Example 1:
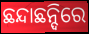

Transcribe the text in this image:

ଛନ୍ଦାଛନ୍ଦିରେ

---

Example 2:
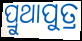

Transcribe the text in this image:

ପ୍ରୁଥାପୁତ୍ର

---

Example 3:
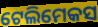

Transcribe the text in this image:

ଟେଲିମେକସ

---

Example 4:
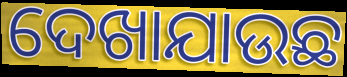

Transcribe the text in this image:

ଦେଖାଯାଉଛ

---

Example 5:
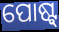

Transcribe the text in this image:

ପୋଷ୍ଟ୍